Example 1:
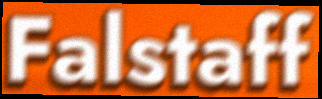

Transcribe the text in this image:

Falstaff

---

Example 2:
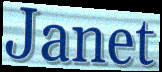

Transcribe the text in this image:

Janet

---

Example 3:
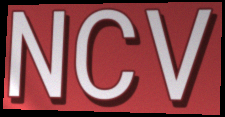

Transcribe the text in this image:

NCV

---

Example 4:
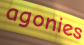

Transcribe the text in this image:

agonies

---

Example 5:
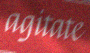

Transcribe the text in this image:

agitate